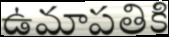
ఉమాపతికి